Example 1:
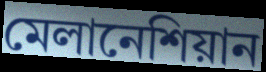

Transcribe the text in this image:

মেলানেশিয়ান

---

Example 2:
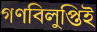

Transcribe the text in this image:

গণবিলুপ্তিই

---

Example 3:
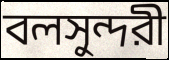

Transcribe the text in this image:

বলসুন্দরী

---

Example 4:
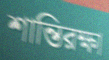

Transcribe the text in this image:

শান্তিরক্ষা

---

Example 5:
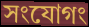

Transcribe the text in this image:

সংযোগং